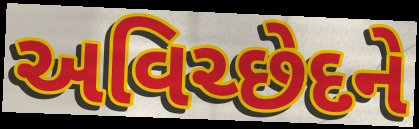
અવિચ્છેદને